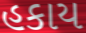
હકાય